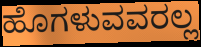
ಹೊಗಳುವವರಲ್ಲ